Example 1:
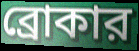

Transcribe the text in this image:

ব্রোকার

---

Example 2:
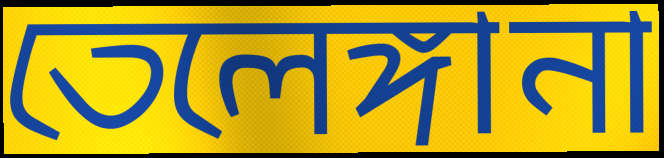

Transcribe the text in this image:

তেলেঙ্গানা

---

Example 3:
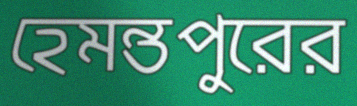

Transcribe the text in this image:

হেমন্তপুরের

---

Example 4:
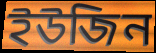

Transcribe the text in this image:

ইউজিন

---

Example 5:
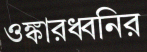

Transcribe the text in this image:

ওঙ্কারধ্বনির